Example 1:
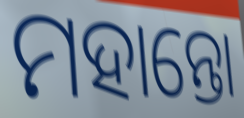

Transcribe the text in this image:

ମହାନ୍ତୋ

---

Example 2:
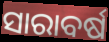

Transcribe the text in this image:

ସାରାବର୍ଷ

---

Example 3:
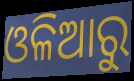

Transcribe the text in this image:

ଓଳିଆରୁ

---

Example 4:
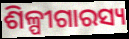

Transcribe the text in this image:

ଶିଳ୍ପୀଗାରସ୍ୟ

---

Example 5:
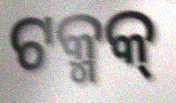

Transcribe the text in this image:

ଟକ୍ମକ୍